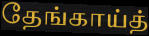
தேங்காய்த்